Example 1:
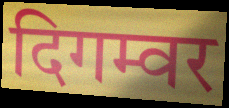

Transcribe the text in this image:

दिगम्वर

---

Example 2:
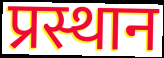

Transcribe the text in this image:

प्रस्थान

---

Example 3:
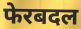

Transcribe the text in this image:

फेरबदल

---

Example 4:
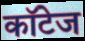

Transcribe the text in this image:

कॉटेज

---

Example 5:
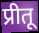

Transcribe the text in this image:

प्रीतू